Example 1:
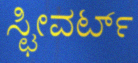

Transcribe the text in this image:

ಸ್ಟೀವರ್ಟ್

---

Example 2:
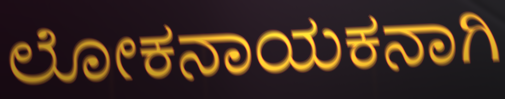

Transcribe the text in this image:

ಲೋಕನಾಯಕನಾಗಿ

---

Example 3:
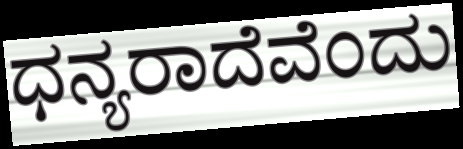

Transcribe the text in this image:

ಧನ್ಯರಾದೆವೆಂದು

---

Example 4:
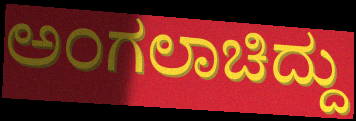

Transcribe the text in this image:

ಅಂಗಲಾಚಿದ್ದು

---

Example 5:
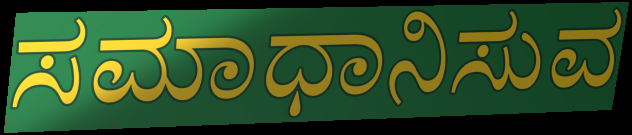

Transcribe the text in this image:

ಸಮಾಧಾನಿಸುವ